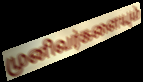
முனிவர்களையும்